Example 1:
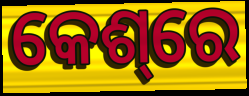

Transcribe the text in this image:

କେଶ୍‌ରେ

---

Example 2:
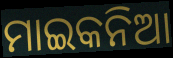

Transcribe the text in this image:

ମାଇକନିଆ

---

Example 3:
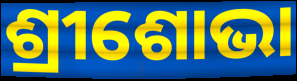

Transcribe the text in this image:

ଶ୍ରୀଶୋଭା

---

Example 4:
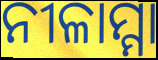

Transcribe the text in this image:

ନୀଳାମ୍ମା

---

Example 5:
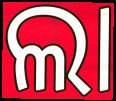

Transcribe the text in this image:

ଲା